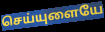
செய்யுளையே